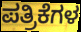
ಪತ್ರಿಕೆಗಳ